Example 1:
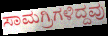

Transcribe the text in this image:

ಸಾಮಗ್ರಿಗಳಿದ್ದವು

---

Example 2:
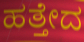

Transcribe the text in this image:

ಹತ್ತೇದ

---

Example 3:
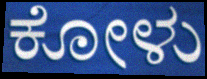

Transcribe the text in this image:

ಕೋಳು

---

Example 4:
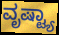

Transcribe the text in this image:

ವೃಷ್ಟ್ಯಾ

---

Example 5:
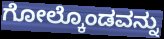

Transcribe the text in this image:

ಗೋಲ್ಕೊಂಡವನ್ನು